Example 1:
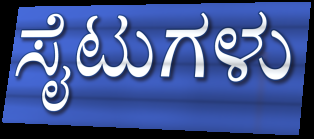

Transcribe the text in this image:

ಸೈಟುಗಳು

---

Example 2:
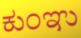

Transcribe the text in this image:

ಕುಂಞು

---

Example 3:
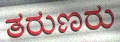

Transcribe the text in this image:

ತರುಣರು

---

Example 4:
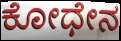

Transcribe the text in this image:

ಕೋಧೇನ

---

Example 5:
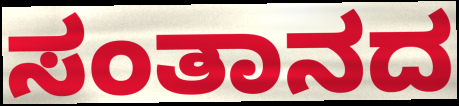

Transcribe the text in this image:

ಸಂತಾನದ